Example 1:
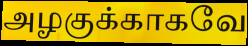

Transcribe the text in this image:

அழகுக்காகவே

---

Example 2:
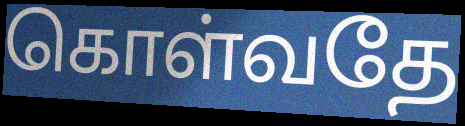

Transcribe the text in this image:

கொள்வதே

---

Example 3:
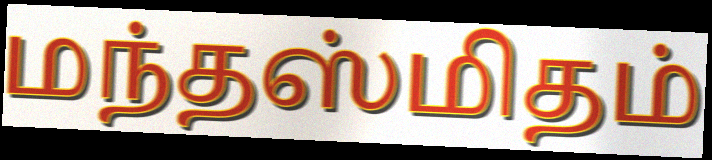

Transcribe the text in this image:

மந்தஸ்மிதம்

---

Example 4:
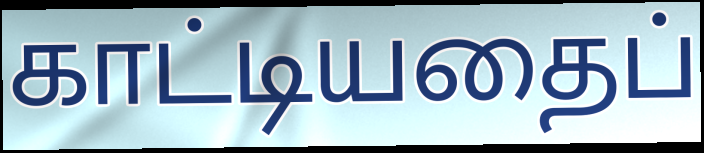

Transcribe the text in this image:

காட்டியதைப்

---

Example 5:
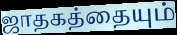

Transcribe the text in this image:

ஜாதகத்தையும்